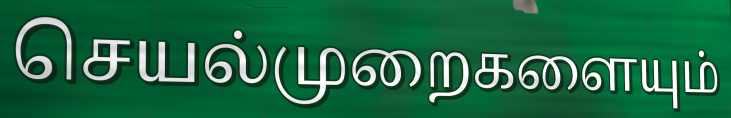
செயல்முறைகளையும்